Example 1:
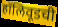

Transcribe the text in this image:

हॉलिवूडची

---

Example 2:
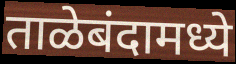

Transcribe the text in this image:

ताळेबंदामध्ये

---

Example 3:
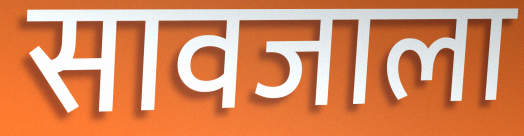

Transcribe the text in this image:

सावजाला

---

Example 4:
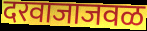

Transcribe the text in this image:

दरवाजाजवळ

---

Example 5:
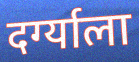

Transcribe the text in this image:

दर्ग्याला